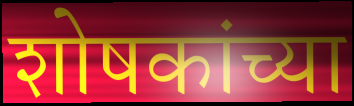
शोषकांच्या